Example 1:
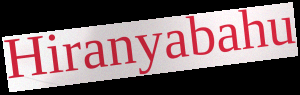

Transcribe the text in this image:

Hiranyabahu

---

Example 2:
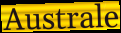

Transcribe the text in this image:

Australe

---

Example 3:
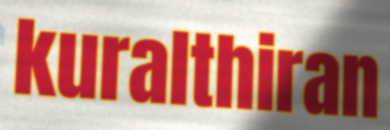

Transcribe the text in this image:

kuralthiran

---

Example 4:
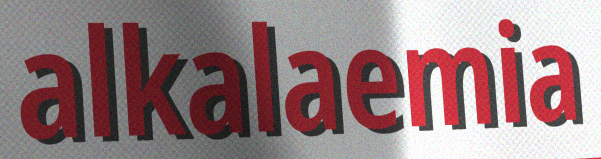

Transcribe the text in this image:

alkalaemia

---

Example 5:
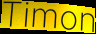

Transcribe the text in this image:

Timon